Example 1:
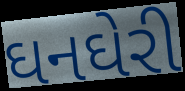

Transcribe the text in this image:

ઘનઘેરી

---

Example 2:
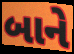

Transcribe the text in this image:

બાને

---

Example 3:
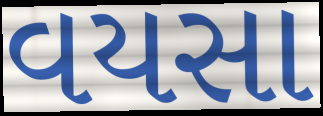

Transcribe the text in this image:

વયસા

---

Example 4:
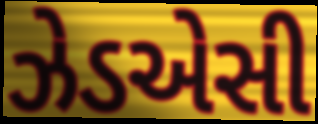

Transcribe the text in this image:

ઝેડએસી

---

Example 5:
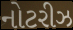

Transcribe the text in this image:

નોટરીઝ